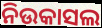
ନିଉକାସଲ